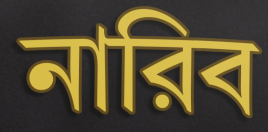
নারিব